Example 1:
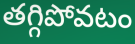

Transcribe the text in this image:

తగ్గిపోవటం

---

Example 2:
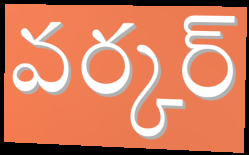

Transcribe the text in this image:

వర్కర్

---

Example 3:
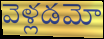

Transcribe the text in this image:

వెళ్లడమో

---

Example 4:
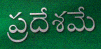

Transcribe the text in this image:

ప్రదేశమే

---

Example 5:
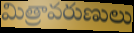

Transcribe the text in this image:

మిత్రావరుణులు